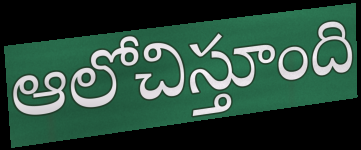
ఆలోచిస్తూంది